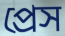
প্রেস